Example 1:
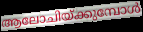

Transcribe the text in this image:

ആലോചിയ്ക്കുമ്പോൾ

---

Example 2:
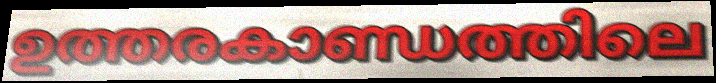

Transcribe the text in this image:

ഉത്തരകാണ്ഡത്തിലെ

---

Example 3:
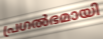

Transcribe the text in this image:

പ്രഗൽഭമായി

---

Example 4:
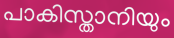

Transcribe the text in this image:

പാകിസ്താനിയും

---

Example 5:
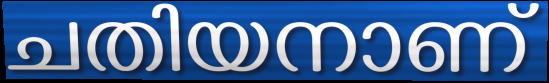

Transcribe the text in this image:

ചതിയനാണ്